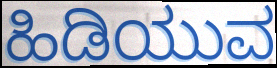
ಹಿಡಿಯುವ